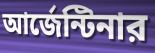
আর্জেন্টিনার